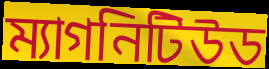
ম্যাগনিটিউড